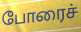
போரைச்